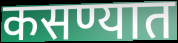
कसण्यात